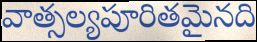
వాత్సల్యపూరితమైనది